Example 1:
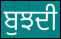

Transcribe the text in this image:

ਬੁਝਦੀ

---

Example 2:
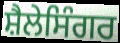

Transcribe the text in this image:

ਸ਼ੈਲੇਸਿੰਗਰ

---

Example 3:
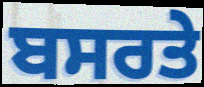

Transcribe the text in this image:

ਬਸਰਤੇ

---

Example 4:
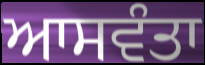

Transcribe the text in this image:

ਆਸਵੰਤਾ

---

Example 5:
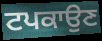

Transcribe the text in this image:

ਟਪਕਾਉਣ